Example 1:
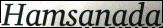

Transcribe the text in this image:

Hamsanada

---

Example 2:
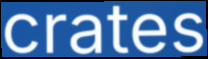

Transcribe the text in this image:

crates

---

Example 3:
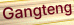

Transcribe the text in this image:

Gangteng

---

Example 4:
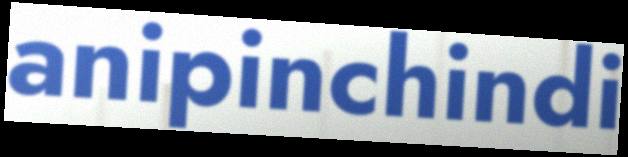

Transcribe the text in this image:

anipinchindi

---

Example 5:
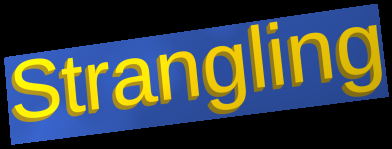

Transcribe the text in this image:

Strangling